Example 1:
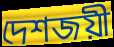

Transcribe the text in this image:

দেশজয়ী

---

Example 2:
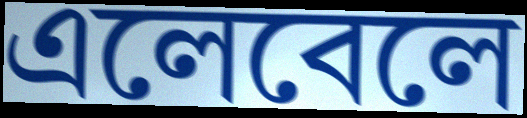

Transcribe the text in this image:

এলেবেলে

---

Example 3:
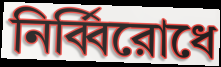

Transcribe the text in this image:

নির্ব্বিরোধে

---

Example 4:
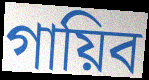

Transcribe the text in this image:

গায়িব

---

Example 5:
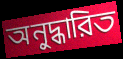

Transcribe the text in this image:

অনুদ্ধারিত